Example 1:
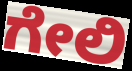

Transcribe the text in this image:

ಗೇಲಿ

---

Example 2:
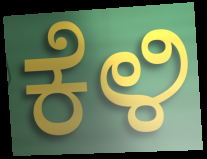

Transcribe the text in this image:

ಕೆಳಿ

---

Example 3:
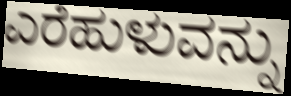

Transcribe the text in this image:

ಎರೆಹುಳುವನ್ನು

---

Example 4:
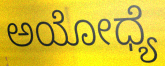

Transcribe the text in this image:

ಅಯೋಧ್ಯೆ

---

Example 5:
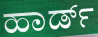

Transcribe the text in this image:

ಹಾರ್ಡ್